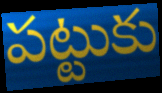
పట్టుకు